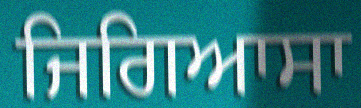
ਜਿਗਿਆਸਾ